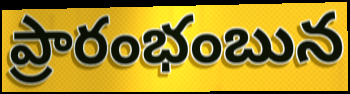
ప్రారంభంబున